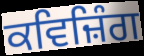
ਕਵਿਜ਼ਿੰਗ